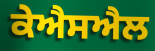
ਕੇਐਸਐਲ